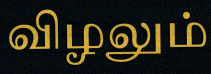
விழலும்